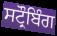
ਸਟ੍ਰੌਬਿੰਗ